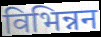
विभिन्नन